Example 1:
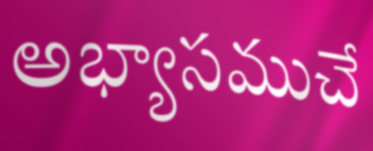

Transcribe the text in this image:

అభ్యాసముచే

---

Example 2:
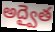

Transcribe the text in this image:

అద్వైత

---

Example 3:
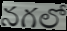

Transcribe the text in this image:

నగలో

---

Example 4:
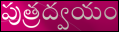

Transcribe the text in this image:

పుత్రద్వయం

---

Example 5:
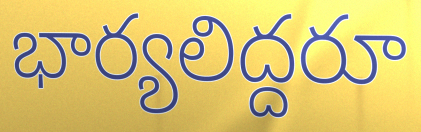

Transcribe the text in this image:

భార్యలిద్దరూ